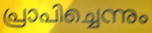
പ്രാപിച്ചെന്നും